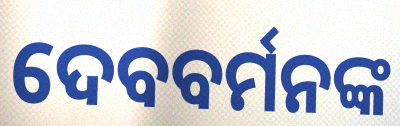
ଦେବବର୍ମନଙ୍କ